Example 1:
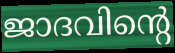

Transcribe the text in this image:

ജാദവിന്റെ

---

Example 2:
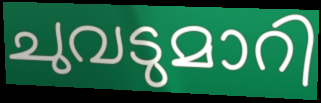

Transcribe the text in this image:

ചുവടുമാറി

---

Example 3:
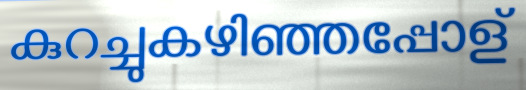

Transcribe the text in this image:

കുറച്ചുകഴിഞ്ഞപ്പോള്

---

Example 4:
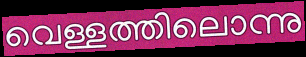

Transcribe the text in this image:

വെള്ളത്തിലൊന്നു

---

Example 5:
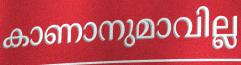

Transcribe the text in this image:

കാണാനുമാവില്ല